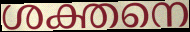
ശക്തനെ